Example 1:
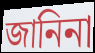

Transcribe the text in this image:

জানিনা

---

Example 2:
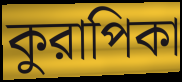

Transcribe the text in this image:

কুরাপিকা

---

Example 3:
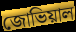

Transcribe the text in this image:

জোভিয়াল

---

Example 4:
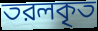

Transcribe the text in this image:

তরলকৃত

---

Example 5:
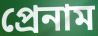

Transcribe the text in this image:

প্রেনাম